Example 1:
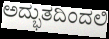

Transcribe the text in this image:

ಅದ್ಭುತದಿಂದಲಿ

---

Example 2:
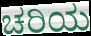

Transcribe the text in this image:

ಚರಿಯ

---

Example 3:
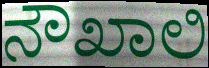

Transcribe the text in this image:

ನೌಖಾಲಿ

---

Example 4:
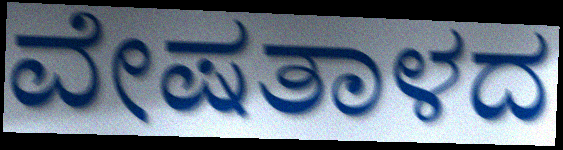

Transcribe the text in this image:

ವೇಷತಾಳದ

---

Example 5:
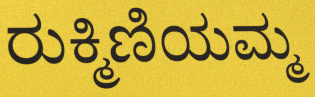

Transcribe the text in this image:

ರುಕ್ಮಿಣಿಯಮ್ಮ